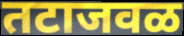
तटाजवळ